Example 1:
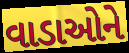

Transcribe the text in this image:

વાડાઓને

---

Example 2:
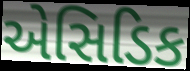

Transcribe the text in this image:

એસિડિક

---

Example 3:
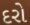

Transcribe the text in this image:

દરો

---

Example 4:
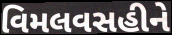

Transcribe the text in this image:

વિમલવસહીને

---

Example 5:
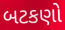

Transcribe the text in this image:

બટકણો